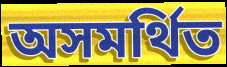
অসমর্থিত